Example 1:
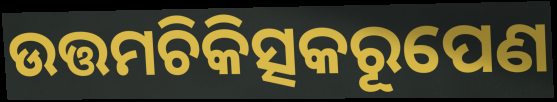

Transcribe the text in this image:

ଉତ୍ତମଚିକିତ୍ସକରୂପେଣ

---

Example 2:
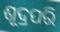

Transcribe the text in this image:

ଶୂଦ୍ରପରି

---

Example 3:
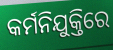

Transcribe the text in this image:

କର୍ମନିଯୁକ୍ତିରେ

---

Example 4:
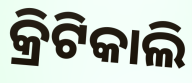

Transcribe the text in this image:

କ୍ରିଟିକାଲି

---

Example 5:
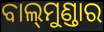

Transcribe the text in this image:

ବାଲ୍‍ମୁଣ୍ଡାର